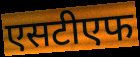
एसटीएफ